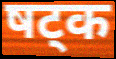
षट्क